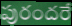
పురందరే